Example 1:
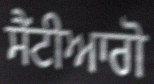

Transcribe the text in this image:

ਸੈਂਟੀਆਗੋ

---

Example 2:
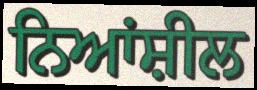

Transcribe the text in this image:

ਨਿਆਂਸ਼ੀਲ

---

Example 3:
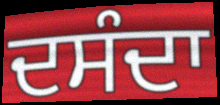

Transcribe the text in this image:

ਦਸੰਦਾ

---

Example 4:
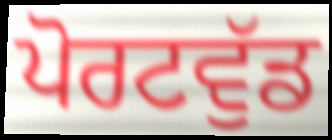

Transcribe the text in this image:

ਪੋਰਟਵੁੱਡ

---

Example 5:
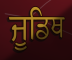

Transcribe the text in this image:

ਜੂਡਿਥ